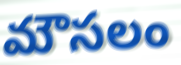
మౌసలం